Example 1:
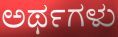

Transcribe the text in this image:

ಅರ್ಥಗಳು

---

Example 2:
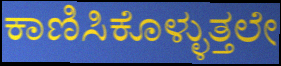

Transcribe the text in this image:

ಕಾಣಿಸಿಕೊಳ್ಳುತ್ತಲೇ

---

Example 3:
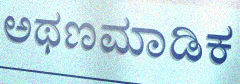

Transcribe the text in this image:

ಅಥಣಮಾಡಿಕ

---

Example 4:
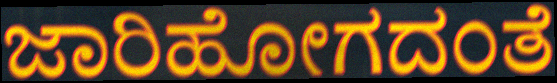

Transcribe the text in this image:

ಜಾರಿಹೋಗದಂತೆ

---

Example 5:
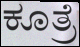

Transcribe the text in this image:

ಕೂತ್ರೆ